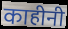
काहीनी